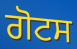
ਗੋਟਸ